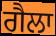
ਗੈਲਾ